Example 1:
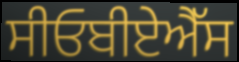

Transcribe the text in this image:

ਸੀਓਬੀਏਐੱਸ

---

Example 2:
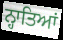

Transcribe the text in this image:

ਨ੍ਹਾਤਿਆਂ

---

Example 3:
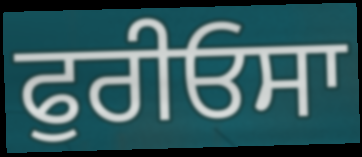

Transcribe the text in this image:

ਫੁਰੀਓਸਾ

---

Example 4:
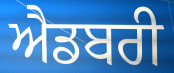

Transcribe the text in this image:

ਐਡਬਰੀ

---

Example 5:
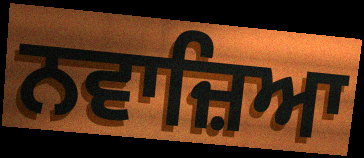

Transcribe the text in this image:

ਨਵਾਜ਼ਿਆ